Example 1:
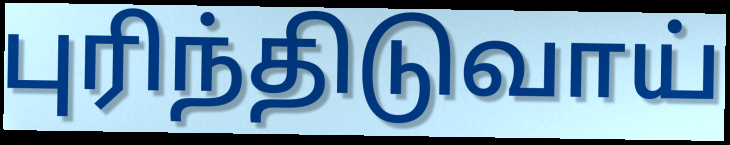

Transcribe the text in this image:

புரிந்திடுவாய்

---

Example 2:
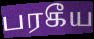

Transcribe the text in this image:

பரகீய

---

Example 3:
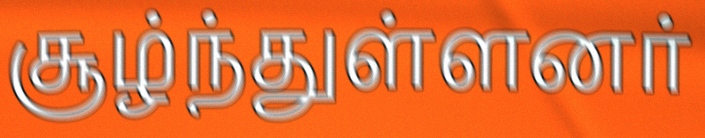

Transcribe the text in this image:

சூழ்ந்துள்ளனர்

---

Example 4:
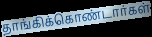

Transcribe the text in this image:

தாங்கிக்கொண்டார்கள்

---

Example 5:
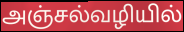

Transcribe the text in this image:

அஞ்சல்வழியில்